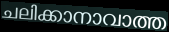
ചലിക്കാനാവാത്ത